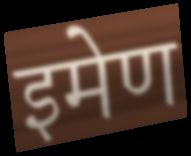
इमेण